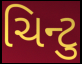
ચિન્ટુ